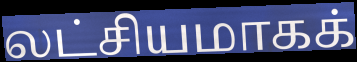
லட்சியமாகக்